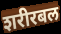
शरीरबल